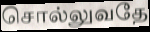
சொல்லுவதே